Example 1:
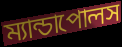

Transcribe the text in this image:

ম্যান্ডাপোলস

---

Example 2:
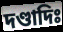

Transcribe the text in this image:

দণ্ডাদিঃ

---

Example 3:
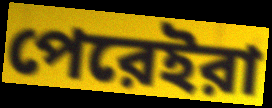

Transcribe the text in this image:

পেরেইরা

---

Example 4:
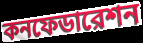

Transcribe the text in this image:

কনফেডারেশন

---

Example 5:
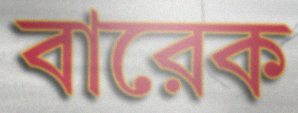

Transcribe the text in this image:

বারেক